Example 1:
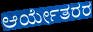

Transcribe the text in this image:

ಆರ್ಯೇತರರ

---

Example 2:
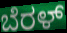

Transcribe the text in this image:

ಬೆರಳ್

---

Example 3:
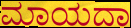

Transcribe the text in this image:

ಮಾಯದಾ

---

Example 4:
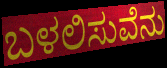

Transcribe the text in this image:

ಬಳಲಿಸುವೆನು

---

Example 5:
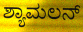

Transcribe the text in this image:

ಶ್ಯಾಮಲನ್